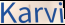
Karvi